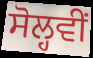
ਸੋਲ੍ਹਵੀਂ